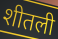
शीतली